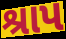
શ્રાપ